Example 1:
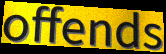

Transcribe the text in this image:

offends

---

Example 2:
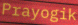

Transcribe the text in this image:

Prayogik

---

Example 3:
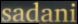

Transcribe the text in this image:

sadani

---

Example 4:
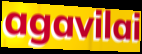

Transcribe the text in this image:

agavilai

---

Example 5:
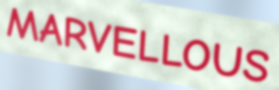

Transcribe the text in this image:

MARVELLOUS